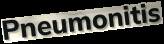
Pneumonitis